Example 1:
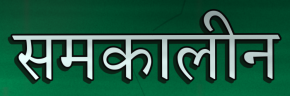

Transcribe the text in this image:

समकालीन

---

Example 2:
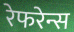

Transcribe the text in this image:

रेफरेन्स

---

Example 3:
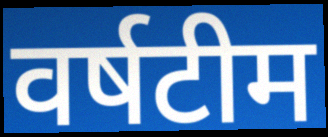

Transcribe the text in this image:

वर्षटीम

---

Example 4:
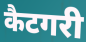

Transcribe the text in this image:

कैटगरी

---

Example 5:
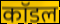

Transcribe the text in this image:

कॉडल